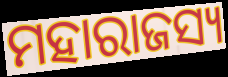
ମହାରାଜସ୍ୟ